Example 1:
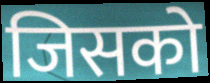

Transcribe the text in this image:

जिसको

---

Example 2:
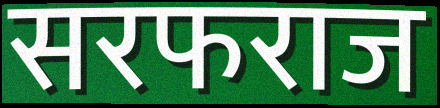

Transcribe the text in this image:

सरफराज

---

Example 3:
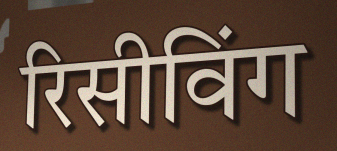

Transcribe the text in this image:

रिसीविंग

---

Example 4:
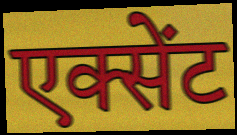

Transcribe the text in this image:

एक्सेंट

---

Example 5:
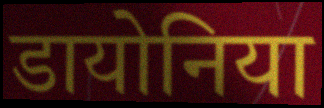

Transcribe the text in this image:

डायोनिया